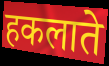
हकलाते